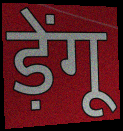
ड़ेंगू